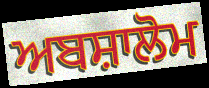
ਅਬਸ਼ਾਲੋਮ